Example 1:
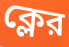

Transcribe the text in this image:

ক্লের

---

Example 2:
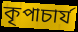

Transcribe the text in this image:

কৃপাচার্য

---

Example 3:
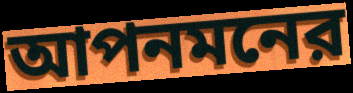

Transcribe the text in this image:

আপনমনের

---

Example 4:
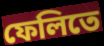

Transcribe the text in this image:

ফেলিতে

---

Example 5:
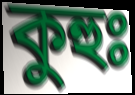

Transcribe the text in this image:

কুহুঃ